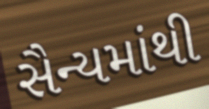
સૈન્યમાંથી